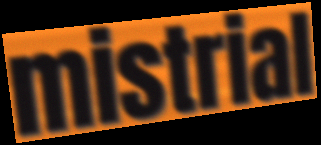
mistrial